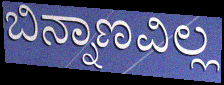
ಬಿನ್ನಾಣವಿಲ್ಲ